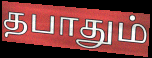
தபாதும்